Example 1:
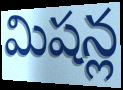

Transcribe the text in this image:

మిషన్ల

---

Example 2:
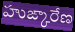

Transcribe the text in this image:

హుఙ్కారేణ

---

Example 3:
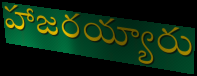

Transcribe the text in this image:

హాజరయ్యారు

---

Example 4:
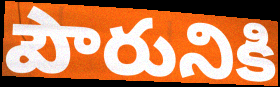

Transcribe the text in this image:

పౌరునికి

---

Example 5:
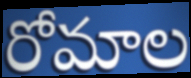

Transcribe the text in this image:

రోమాల